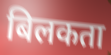
बिलकता